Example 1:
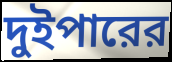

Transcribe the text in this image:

দুইপারের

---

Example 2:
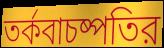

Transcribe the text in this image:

তর্কবাচষ্পতির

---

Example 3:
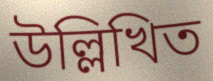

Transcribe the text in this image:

উল্লিখিত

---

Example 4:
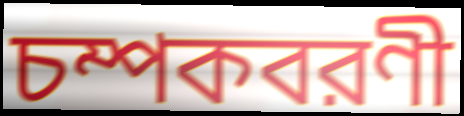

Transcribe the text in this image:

চম্পকবরণী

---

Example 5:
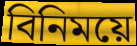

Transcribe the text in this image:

বিনিময়ে